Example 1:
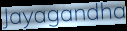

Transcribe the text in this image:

Jayagandha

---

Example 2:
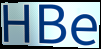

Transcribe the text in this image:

HBe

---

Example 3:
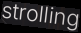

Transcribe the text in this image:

strolling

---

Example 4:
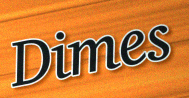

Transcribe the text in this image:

Dimes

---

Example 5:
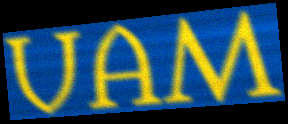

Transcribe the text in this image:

UAM